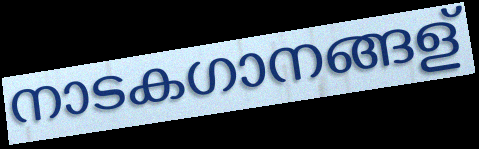
നാടകഗാനങ്ങള്